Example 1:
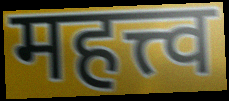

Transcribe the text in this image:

महत्त्व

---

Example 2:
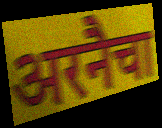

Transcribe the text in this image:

अरनैचा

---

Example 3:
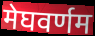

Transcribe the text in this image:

मेघवर्णम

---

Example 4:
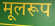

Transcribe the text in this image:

मूलरूप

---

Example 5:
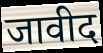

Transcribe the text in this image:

जावीद